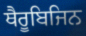
ਥੈਰੂਬਿਜਿਨ